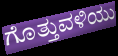
ಗೊತ್ತುವಳಿಯು